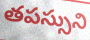
తపస్సుని